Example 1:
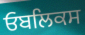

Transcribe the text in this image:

ਓਬਲਿਕਸ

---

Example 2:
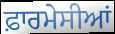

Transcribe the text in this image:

ਫ਼ਾਰਮੇਸੀਆਂ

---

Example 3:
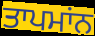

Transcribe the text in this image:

ਤਾਪਮਾਂਨ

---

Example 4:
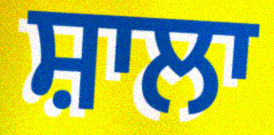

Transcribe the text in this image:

ਸ਼ਾਲਾ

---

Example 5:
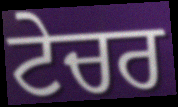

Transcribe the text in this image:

ਟੇਚਰ